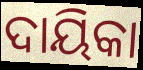
ଦାୟିକା